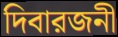
দিবারজনী